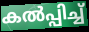
കൽപ്പിച്ച്